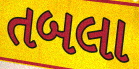
તબલા